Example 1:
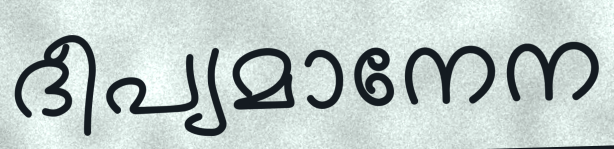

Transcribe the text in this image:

ദീപ്യമാനേന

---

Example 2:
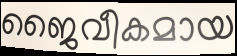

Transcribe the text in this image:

ജൈവീകമായ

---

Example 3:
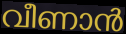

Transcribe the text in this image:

വീണാൻ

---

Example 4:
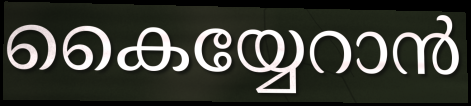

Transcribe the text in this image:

കൈയ്യേറാൻ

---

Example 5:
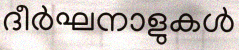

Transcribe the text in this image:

ദീർഘനാളുകൾ